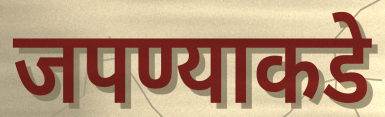
जपण्याकडे